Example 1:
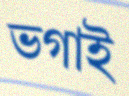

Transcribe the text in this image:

ভগাই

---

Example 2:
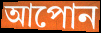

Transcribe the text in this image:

আপোন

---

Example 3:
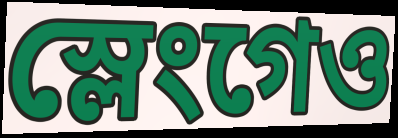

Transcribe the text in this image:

স্লেংগেও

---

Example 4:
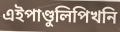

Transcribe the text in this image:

এইপাণ্ডুলিপিখনি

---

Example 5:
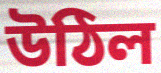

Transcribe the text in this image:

উঠিল